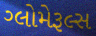
ગ્લોમેરૂલ્સ